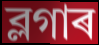
ব্লগাৰ